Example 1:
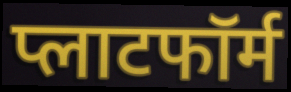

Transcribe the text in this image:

प्लाटफॉर्म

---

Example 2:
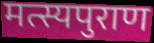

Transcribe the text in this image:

मत्स्यपुराण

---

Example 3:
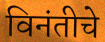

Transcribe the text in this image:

विनंतीचे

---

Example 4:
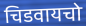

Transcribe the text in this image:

चिडवायचो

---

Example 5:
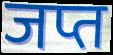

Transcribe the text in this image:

जप्त